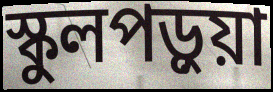
স্কুলপড়ুয়া